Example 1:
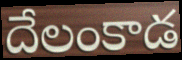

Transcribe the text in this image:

దేలంకాడ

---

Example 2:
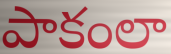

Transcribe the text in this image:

పాకంలా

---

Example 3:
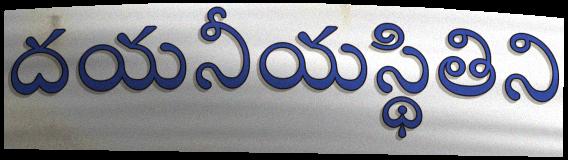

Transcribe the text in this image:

దయనీయస్థితిని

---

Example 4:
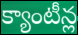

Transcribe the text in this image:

క్యాంటీన్ల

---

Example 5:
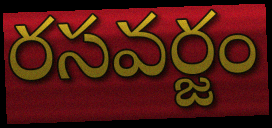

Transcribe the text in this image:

రసవర్జం